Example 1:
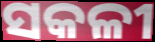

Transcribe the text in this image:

ସକଳୀ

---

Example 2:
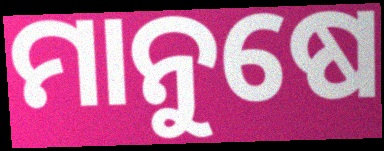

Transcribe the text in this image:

ମାନୁଷେ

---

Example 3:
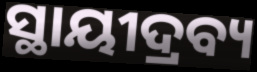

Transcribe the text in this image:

ସ୍ଥାୟୀଦ୍ରବ୍ୟ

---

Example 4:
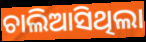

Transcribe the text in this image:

ଚାଲିଆସିଥିଲା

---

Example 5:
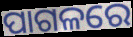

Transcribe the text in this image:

ପାଗଳରେ